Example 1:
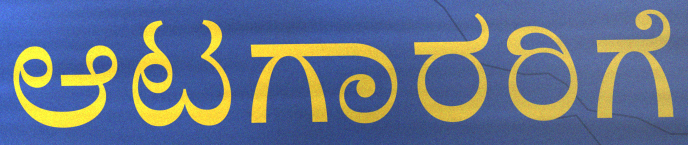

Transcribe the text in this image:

ಆಟಗಾರರಿಗೆ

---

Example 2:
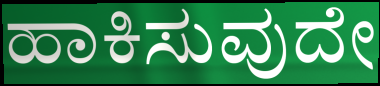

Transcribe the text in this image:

ಹಾಕಿಸುವುದೇ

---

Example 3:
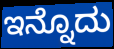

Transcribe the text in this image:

ಇನ್ನೊದು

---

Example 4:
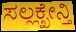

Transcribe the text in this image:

ಸಲ್ಲಕ್ಖೇನ್ತಿ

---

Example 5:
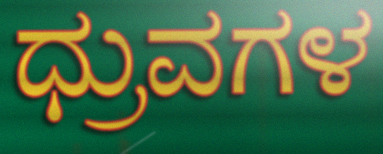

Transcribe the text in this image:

ಧ್ರುವಗಳ